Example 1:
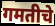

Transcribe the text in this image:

गमतीचे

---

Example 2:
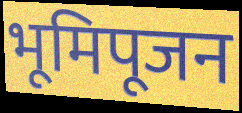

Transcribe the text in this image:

भूमिपूजन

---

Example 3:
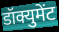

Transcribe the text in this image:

डॉक्युमेंट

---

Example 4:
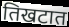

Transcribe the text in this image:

तिखटात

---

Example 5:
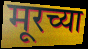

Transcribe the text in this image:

मूरच्या